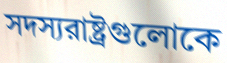
সদস্যরাষ্ট্রগুলোকে